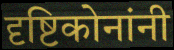
दृष्टिकोनांनी